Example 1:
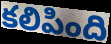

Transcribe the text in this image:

కలిపింది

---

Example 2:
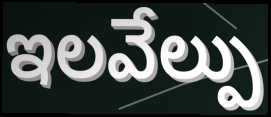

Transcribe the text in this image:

ఇలవేల్పు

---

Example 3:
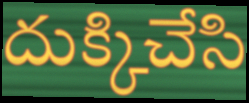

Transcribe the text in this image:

దుక్కిచేసి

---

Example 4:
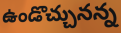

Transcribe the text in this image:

ఉండొచ్చునన్న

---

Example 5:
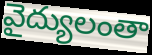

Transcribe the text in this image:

వైద్యులంతా